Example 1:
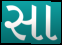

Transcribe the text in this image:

સા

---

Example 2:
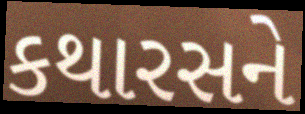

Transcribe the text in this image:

કથારસને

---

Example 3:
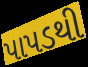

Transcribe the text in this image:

પાપડથી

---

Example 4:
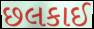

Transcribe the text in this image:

છલકાઈ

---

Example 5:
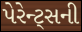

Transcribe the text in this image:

પેરેન્ટ્સની